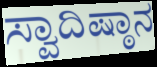
ಸ್ವಾದಿಷ್ಠಾನ